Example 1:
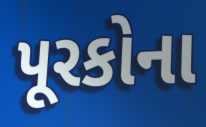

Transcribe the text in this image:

પૂરકોના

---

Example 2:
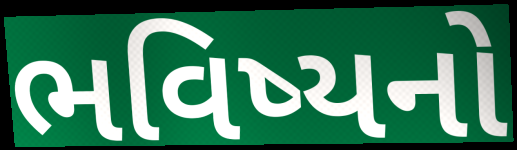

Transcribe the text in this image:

ભવિષ્યનો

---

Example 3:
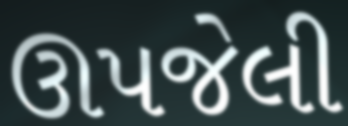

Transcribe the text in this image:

ઊપજેલી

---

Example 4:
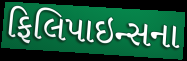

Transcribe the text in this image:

ફિલિપાઇન્સના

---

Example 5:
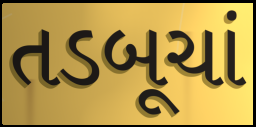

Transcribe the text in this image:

તડબૂચાં